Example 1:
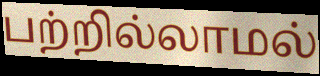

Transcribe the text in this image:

பற்றில்லாமல்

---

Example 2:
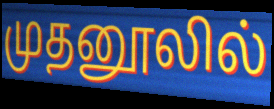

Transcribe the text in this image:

முதனூலில்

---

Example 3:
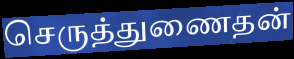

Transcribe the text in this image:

செருத்துணைதன்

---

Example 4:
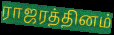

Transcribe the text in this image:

ராஜரத்தினம்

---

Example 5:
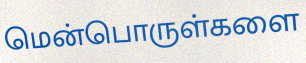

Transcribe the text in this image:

மென்பொருள்களை